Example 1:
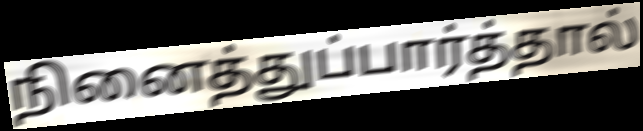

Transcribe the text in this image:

நினைத்துப்பார்த்தால்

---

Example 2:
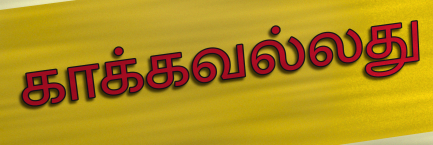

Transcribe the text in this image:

காக்கவல்லது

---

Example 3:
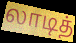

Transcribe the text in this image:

லாடித்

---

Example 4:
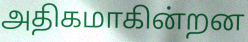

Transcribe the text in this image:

அதிகமாகின்றன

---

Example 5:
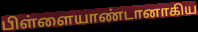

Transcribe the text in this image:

பிள்ளையாண்டானாகிய